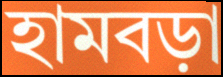
হামবড়া